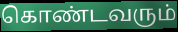
கொண்டவரும்